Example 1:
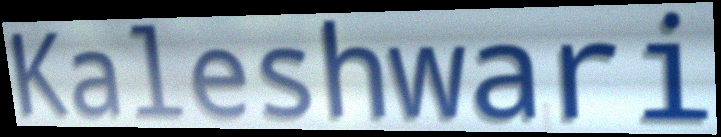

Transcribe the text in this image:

Kaleshwari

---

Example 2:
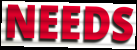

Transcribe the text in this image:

NEEDS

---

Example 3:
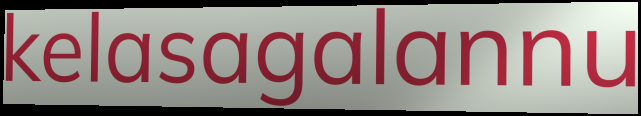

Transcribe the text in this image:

kelasagalannu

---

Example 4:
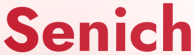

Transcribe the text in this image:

Senich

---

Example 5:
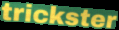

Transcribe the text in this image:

trickster